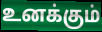
உனக்கும்